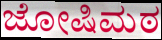
ಜೋಷಿಮಠ